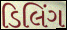
ડિલિંગ